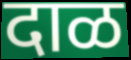
दाळ